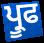
ਪ੍ਰੂਫ